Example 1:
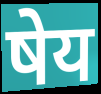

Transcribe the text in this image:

षेय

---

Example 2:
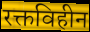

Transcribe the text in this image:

रक्तविहीन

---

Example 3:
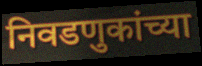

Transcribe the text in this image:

निवडणुकांच्या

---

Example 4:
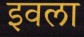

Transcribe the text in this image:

इवला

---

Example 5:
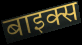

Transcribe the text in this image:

बाइक्स